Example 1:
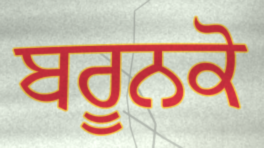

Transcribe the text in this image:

ਬਰੂਨਕੋ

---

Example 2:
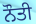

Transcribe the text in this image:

ਨੌਤੀ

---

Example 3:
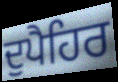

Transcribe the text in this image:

ਦੁਪੈਹਿਰ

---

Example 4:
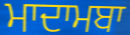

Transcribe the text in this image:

ਮਾਦਾਮਬਾ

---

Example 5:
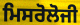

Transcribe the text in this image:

ਮਿਸਰੋਲੋਜੀ